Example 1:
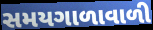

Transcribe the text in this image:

સમયગાળાવાળી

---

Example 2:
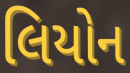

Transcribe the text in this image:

લિયોન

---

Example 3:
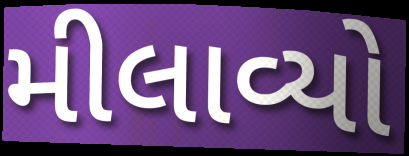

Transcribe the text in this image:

મીલાવ્યો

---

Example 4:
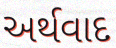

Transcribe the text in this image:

અર્થવાદ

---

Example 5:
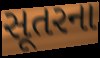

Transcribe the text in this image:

સૂતરના